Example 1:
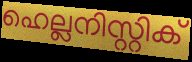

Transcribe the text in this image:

ഹെല്ലനിസ്റ്റിക്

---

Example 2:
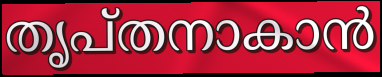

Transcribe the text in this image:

തൃപ്തനാകാൻ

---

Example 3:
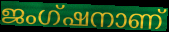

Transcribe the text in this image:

ജംഗ്ഷനാണ്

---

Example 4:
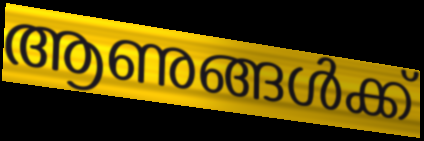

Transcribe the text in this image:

ആണുങ്ങൾക്ക്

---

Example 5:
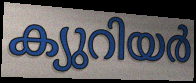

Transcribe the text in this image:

ക്യുറിയർ